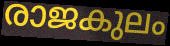
രാജകുലം